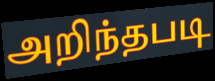
அறிந்தபடி